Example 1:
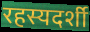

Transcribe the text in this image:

रहस्यदर्शी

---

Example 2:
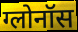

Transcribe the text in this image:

ग्लोनॉस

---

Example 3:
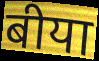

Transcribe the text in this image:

बीया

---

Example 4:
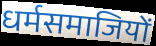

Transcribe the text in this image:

धर्मसमाजियों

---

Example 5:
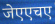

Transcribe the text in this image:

जेएएचए